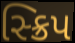
સ્ક્રિપ